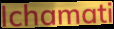
Ichamati